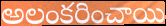
అలంకరించాయి